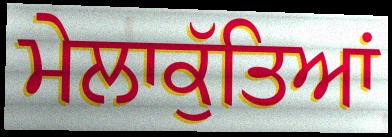
ਮੇਲਾਕੁੱਤਿਆਂ